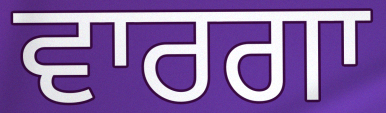
ਵਾਰਗਾ